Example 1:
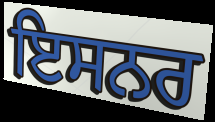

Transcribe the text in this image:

ਇਸਨਰ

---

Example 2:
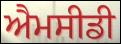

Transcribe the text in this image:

ਐਮਸੀਡੀ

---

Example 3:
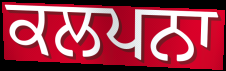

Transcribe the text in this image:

ਕਲਪਨਾ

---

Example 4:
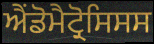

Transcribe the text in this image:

ਐਂਡੋਮੈਟ੍ਰੋਸਿਸਸ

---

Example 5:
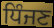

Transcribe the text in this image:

ਧਿੰਜਣ